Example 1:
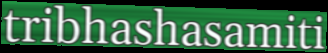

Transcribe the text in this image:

tribhashasamiti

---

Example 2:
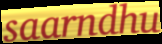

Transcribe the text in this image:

saarndhu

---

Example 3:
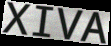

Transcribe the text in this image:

XIVA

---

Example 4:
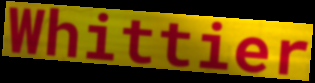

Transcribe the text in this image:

Whittier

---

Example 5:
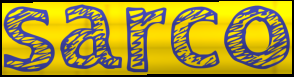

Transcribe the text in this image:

sarco